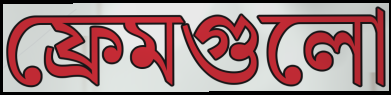
ফ্রেমগুলো